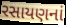
રસાયણનાં